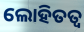
ଲୋହିତତ୍ଵ